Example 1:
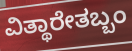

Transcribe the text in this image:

ವಿತ್ಥಾರೇತಬ್ಬಂ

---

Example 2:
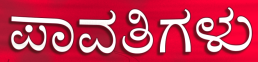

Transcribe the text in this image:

ಪಾವತಿಗಳು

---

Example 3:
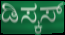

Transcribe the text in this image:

ಡಿಸ್ಕಸ್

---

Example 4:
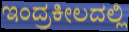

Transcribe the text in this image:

ಇಂದ್ರಕೀಲದಲ್ಲಿ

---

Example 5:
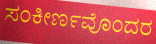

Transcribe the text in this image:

ಸಂಕೀರ್ಣವೊಂದರ